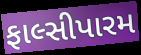
ફાલ્સીપારમ